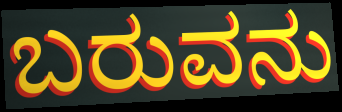
ಬರುವನು